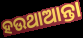
ହଉଥାଆନ୍ତା